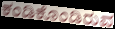
ಕಂಡಿಕೊಂಡಿರುವ